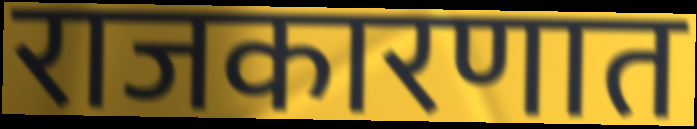
राजकारणात